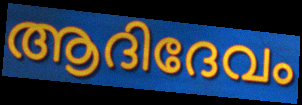
ആദിദേവം